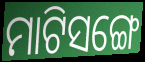
ମାଟିସଙ୍ଗେ